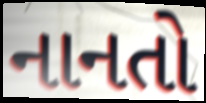
નાનતો